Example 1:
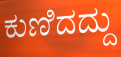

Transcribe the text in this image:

ಕುಣಿದದ್ದು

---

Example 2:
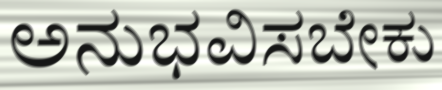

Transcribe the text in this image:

ಅನುಭವಿಸಬೇಕು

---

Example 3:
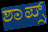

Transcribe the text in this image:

ಶಾಪ್ಸ್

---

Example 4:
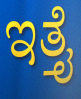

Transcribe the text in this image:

ಇತ್ತೈ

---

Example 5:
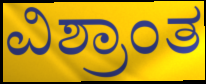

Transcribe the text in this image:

ವಿಶ್ರಾಂತ